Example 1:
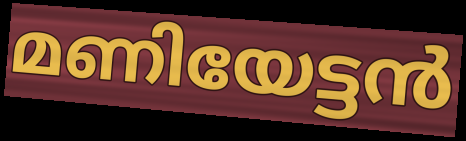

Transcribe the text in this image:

മണിയേട്ടൻ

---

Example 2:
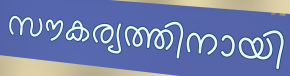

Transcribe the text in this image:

സൗകര്യത്തിനായി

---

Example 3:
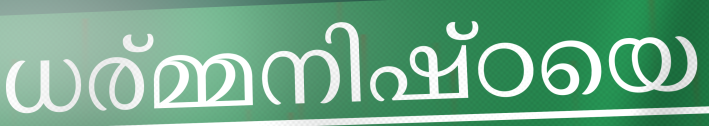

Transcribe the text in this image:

ധര്മ്മനിഷ്ഠയെ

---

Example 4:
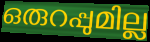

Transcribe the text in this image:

ഒരുറപ്പുമില്ല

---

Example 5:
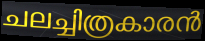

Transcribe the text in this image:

ചലച്ചിത്രകാരൻ